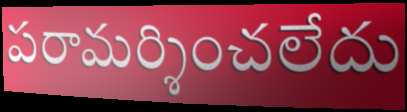
పరామర్శించలేదు